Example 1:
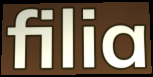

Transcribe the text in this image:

filia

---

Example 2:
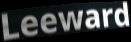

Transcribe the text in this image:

Leeward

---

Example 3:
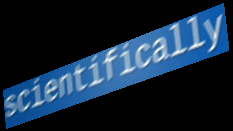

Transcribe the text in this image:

scientifically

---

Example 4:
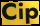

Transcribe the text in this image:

Cip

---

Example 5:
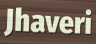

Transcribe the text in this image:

Jhaveri